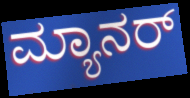
ಮ್ಯಾನರ್